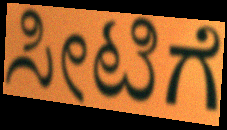
ಸೀಟಿಗೆ